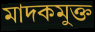
মাদকমুক্ত